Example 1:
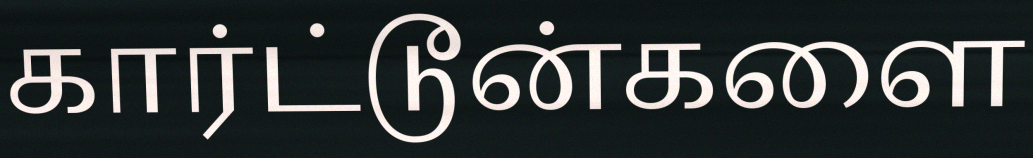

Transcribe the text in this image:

கார்ட்டூன்களை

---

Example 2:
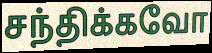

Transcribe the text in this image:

சந்திக்கவோ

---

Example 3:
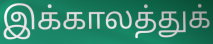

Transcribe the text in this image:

இக்காலத்துக்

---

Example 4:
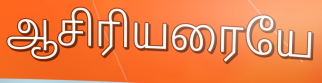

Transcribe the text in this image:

ஆசிரியரையே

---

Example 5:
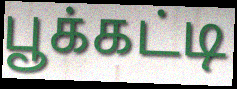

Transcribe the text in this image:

பூக்கட்டி